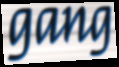
gang